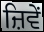
ਜ਼ਿਵੇਂ